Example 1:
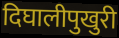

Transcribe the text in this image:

दिघालीपुखुरी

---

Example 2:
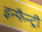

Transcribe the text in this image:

इन्फैन्ट्री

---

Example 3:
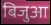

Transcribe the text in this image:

बिजुआ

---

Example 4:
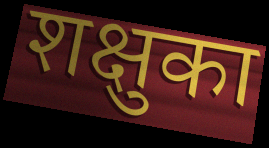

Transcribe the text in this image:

शक्षुका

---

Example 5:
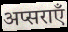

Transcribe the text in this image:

अप्सराएँ